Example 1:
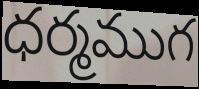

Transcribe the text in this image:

ధర్మముగ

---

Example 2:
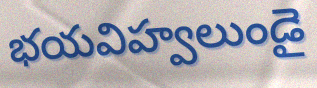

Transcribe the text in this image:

భయవిహ్వలుండై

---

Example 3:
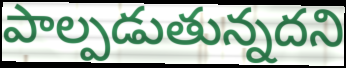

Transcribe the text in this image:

పాల్పడుతున్నదని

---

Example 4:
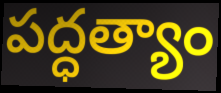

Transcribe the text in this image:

పద్ధత్యాం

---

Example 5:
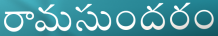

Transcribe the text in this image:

రామసుందరం